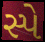
સ્પે